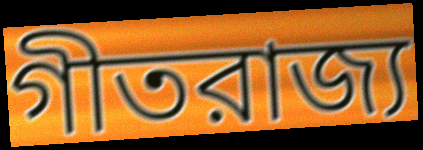
গীতরাজ্য